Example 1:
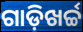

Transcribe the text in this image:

ଗାଡ଼ିଖର୍ଚ୍ଚ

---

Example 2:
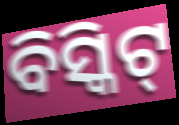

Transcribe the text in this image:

ବିସ୍କିଟ୍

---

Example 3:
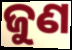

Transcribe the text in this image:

ଜୁଣ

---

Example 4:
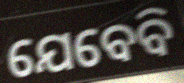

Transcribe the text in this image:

ଯେବେବି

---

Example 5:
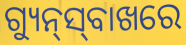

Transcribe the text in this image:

ଗ୍ୟୁନ୍‍ସ୍‍ବାଖରେ